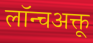
लॉन्चअक्तू